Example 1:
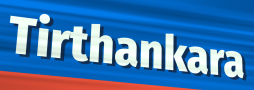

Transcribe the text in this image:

Tirthankara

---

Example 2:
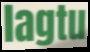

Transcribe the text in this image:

lagtu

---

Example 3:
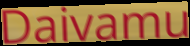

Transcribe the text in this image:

Daivamu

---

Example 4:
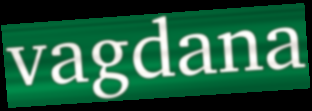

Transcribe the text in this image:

vagdana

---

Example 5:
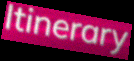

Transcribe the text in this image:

Itinerary